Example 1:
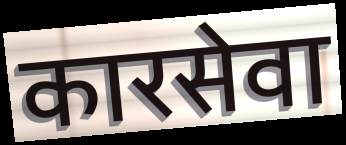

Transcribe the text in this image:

कारसेवा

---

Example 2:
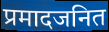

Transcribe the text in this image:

प्रमादजनित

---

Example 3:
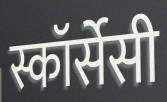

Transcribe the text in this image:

स्कॉर्सेसी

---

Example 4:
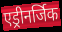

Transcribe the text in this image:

एड्रीनर्जिक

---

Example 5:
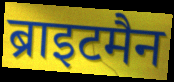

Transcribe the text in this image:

ब्राइटमैन